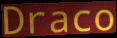
Draco